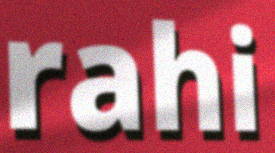
rahi